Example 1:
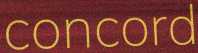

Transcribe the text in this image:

concord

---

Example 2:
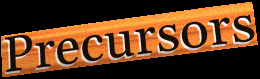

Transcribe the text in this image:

Precursors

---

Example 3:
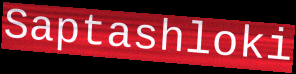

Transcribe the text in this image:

Saptashloki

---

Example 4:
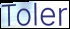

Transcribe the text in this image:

Toler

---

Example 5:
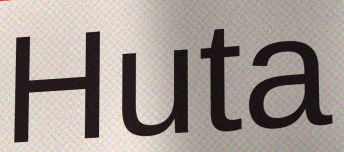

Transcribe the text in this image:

Huta